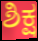
ಶಿಕ್ಷ